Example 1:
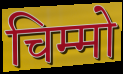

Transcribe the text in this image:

चिम्मो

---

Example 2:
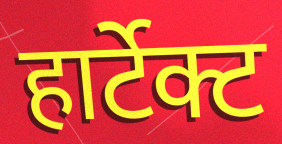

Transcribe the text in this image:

हार्टेक्ट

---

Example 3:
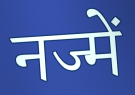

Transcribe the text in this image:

नज्में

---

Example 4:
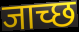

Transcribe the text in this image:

जाच्छ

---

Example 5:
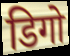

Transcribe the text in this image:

डिगो